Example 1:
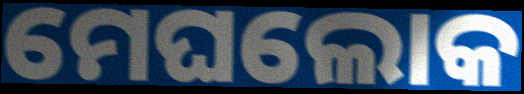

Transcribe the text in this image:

ମେଘଲୋକ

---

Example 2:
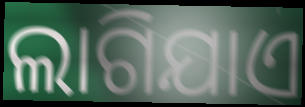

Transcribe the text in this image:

ଲାଗିଯାଏ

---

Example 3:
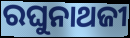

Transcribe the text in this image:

ରଘୁନାଥଜୀ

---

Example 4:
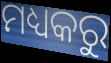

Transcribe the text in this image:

ମଧ୍ୟକରୁ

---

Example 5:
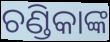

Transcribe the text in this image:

ଚଣ୍ଡିକାଙ୍କ